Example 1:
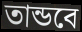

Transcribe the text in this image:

তান্ডবে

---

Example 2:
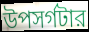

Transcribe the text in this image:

উপসর্গটার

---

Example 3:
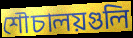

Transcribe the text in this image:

শৌচালয়গুলি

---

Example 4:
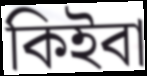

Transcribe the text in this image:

কিইবা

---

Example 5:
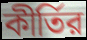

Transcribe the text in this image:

কীর্তির